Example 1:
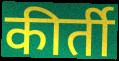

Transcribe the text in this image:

कीर्ती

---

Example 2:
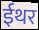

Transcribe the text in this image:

ईथर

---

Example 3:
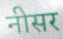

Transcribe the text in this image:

नीसर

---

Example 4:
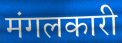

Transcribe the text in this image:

मंगलकारी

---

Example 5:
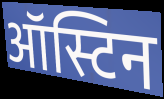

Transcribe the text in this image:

ऑस्टिन